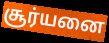
சூர்யனை